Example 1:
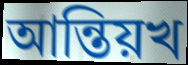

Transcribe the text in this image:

আন্তিয়খ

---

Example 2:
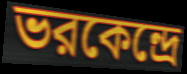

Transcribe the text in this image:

ভরকেন্দ্রে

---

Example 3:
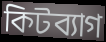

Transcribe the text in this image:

কিটব্যাগ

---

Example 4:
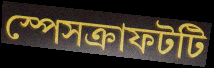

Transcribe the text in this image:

স্পেসক্রাফটটি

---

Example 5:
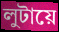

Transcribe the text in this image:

লুটায়ে